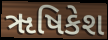
ૠષિકેશ